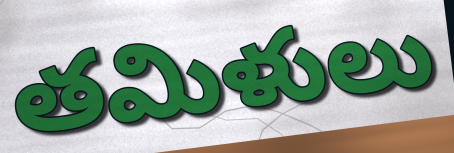
తమిళులు